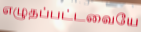
எழுதப்பட்டவையே